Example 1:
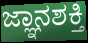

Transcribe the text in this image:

ಜ್ಞಾನಶಕ್ತಿ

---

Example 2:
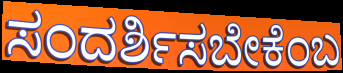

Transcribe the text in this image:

ಸಂದರ್ಶಿಸಬೇಕೆಂಬ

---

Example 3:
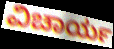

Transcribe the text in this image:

ವಿಚಾರ್ಯ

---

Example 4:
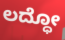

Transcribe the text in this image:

ಲದ್ಧೋ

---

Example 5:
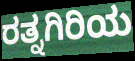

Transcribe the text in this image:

ರತ್ನಗಿರಿಯ